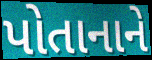
પોતાનાને